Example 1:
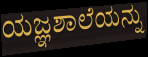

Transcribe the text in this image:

ಯಜ್ಞಶಾಲೆಯನ್ನು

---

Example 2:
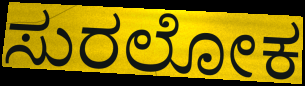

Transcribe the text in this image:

ಸುರಲೋಕ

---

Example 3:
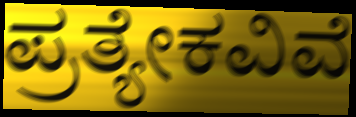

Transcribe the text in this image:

ಪ್ರತ್ಯೇಕವಿವೆ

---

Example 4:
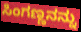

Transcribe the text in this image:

ಸಿಂಗಣ್ಣನನ್ನು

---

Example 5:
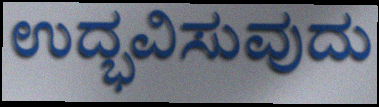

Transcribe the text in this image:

ಉದ್ಭವಿಸುವುದು